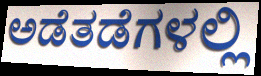
ಅಡೆತಡೆಗಳಲ್ಲಿ